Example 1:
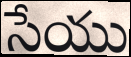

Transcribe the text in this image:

సేయు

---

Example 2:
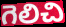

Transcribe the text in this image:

గెలిచి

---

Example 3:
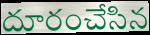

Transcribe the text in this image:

దూరంచేసిన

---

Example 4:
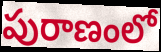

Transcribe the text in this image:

పురాణంలో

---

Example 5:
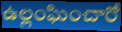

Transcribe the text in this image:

ఉల్లంఘించారో